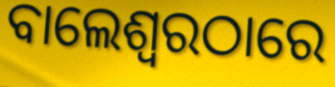
ବାଲେଶ୍ଵରଠାରେ